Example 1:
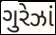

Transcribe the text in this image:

ગુરેઝાં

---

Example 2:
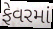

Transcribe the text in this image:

ફેવરમાં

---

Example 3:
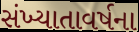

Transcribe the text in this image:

સંખ્યાતાવર્ષના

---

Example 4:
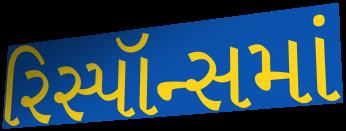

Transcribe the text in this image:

રિસ્પૉન્સમાં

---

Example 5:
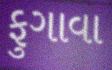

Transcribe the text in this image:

ફુગાવા